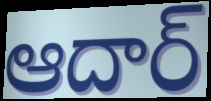
ఆదార్